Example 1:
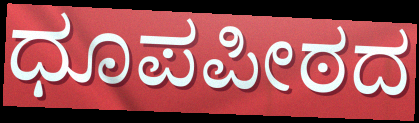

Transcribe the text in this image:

ಧೂಪಪೀಠದ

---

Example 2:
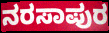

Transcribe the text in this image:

ನರಸಾಪುರ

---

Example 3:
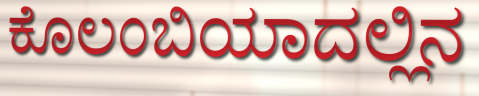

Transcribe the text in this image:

ಕೊಲಂಬಿಯಾದಲ್ಲಿನ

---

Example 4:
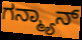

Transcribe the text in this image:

ಗನ್ಮ್ಯಾನ್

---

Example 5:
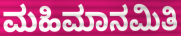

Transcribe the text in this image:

ಮಹಿಮಾನಮಿತಿ